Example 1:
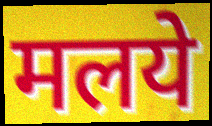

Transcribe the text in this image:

मलये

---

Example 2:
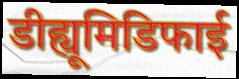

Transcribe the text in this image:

डीह्यूमिडिफाई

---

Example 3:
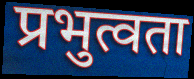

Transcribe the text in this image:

प्रभुत्वता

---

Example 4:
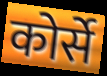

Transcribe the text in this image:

कोर्से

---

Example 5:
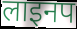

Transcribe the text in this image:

लाइनप